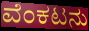
ವೆಂಕಟನು